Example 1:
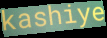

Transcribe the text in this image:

kashiye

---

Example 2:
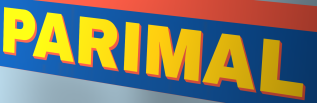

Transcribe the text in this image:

PARIMAL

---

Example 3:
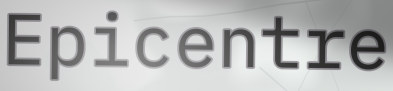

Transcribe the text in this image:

Epicentre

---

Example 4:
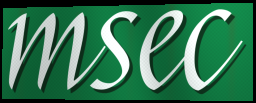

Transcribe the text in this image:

msec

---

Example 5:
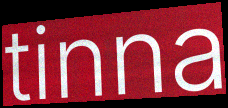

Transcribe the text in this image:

tinna